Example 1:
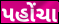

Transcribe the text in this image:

પહોંચા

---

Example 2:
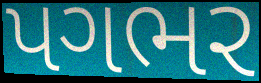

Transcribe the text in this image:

પગભર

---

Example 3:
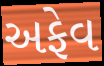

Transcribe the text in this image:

અફેવ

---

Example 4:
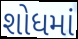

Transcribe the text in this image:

શોધમાં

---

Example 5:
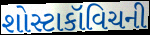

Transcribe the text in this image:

શોસ્ટાકૉવિચની